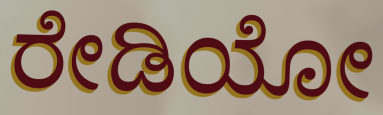
ರೇಡಿಯೋ